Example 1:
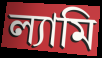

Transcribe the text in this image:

ল্যামি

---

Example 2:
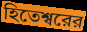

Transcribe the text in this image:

হিতেশ্বরের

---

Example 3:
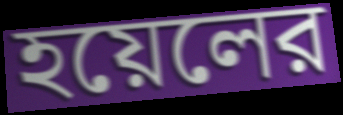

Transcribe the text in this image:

হয়েলের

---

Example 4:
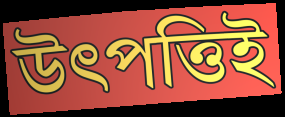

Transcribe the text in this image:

উৎপত্তিই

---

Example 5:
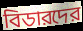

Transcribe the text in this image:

বিডারদের